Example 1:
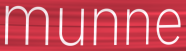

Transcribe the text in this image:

munne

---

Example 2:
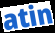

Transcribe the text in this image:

atin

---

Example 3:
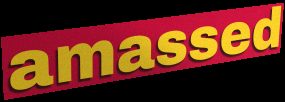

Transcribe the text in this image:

amassed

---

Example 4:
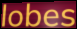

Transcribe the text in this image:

lobes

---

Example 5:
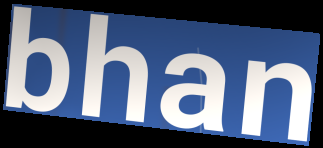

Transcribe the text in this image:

bhan